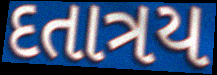
દતાત્રય